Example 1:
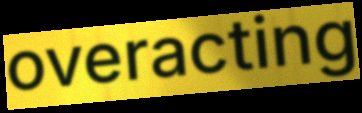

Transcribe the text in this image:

overacting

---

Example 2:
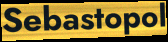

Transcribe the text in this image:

Sebastopol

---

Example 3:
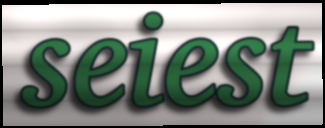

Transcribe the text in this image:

seiest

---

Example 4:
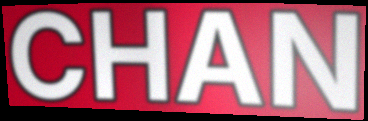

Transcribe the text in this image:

CHAN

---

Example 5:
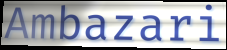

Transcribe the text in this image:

Ambazari